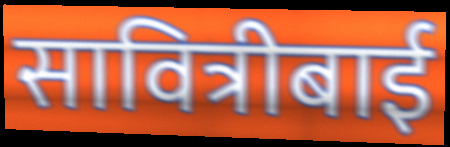
सावित्रीबाई